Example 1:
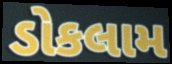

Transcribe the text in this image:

ડોકલામ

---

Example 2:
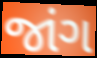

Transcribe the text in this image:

જાંગ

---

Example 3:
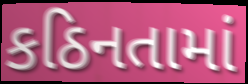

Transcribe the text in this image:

કઠિનતામાં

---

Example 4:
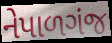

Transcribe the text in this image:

નેપાળગંજ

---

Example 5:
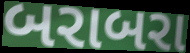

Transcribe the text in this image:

બરાબરા